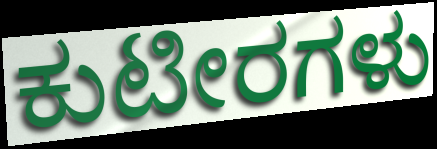
ಕುಟೀರಗಳು